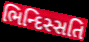
ભિન્દિસ્સતિ